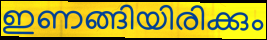
ഇണങ്ങിയിരിക്കും